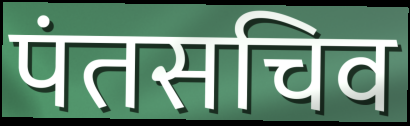
पंतसचिव